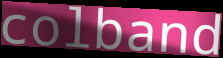
colband